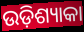
ଉଡ଼ିଶ୍ୟାକା